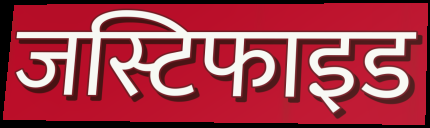
जस्टिफाइड